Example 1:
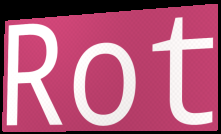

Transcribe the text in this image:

Rot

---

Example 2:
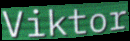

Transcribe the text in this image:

Viktor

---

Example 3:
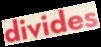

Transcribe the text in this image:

divides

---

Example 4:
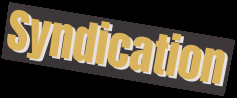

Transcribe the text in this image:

Syndication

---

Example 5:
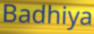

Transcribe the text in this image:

Badhiya